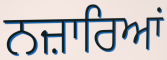
ਨਜ਼ਾਰਿਆਂ